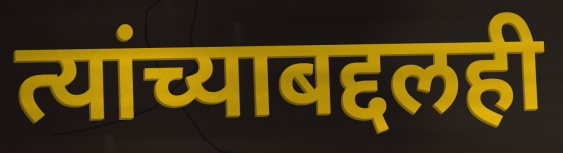
त्यांच्याबद्दलही